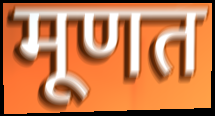
मूणत